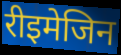
रीइमेजिन